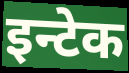
इन्टेक